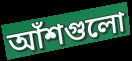
আঁশগুলো